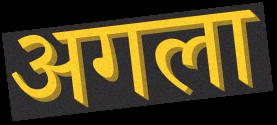
अगला